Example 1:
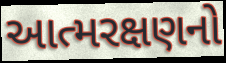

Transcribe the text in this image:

આત્મરક્ષણનો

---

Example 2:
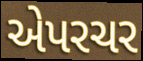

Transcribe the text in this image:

એપરચર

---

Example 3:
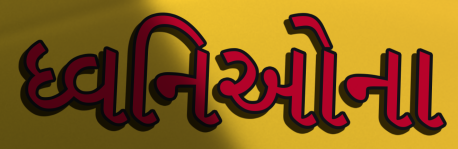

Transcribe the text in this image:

ધ્વનિઓના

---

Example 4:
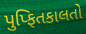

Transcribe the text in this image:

પુપ્ફિતકાલતો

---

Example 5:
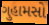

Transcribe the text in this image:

ગુહામસો